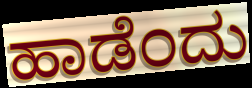
ಹಾಡೆಂದು